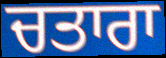
ਚਤਾਰਾ